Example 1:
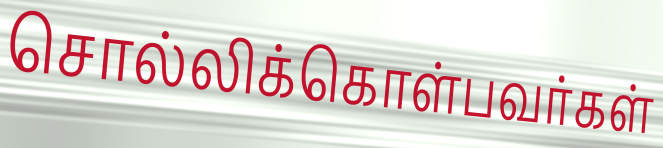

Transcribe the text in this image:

சொல்லிக்கொள்பவர்கள்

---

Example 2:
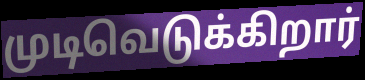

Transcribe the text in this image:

முடிவெடுக்கிறார்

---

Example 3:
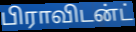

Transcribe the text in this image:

பிராவிடன்ட்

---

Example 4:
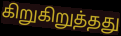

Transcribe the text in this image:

கிறுகிறுத்தது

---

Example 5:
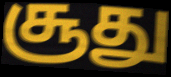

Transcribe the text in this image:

சூது